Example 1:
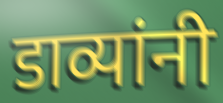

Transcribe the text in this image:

डाव्यांनी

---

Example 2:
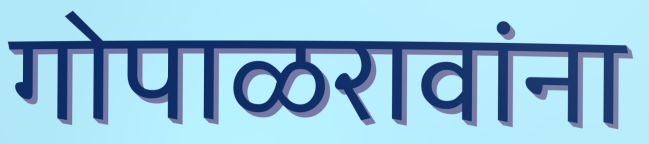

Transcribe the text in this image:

गोपाळरावांना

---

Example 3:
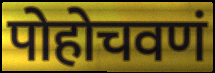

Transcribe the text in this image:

पोहोचवणं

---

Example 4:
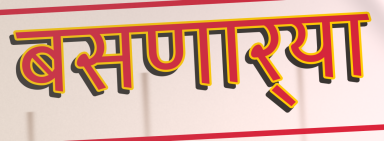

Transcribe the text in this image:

बसणार्‍या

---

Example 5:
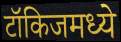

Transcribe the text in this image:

टॉकिजमध्ये